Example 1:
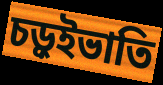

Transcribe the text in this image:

চড়ুইভাতি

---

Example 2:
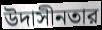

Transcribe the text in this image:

উদাসীনতার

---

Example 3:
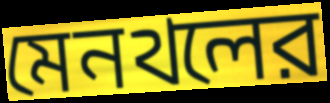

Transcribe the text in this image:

মেনথলের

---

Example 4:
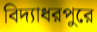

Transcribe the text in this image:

বিদ্যাধরপুরে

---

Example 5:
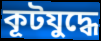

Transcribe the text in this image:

কূটযুদ্ধে